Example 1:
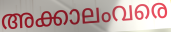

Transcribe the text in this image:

അക്കാലംവരെ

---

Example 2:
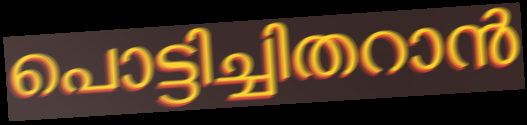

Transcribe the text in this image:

പൊട്ടിച്ചിതറാൻ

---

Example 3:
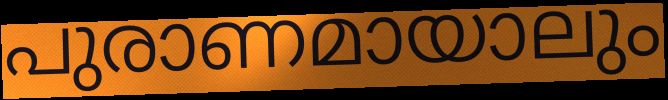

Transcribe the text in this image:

പുരാണമായാലും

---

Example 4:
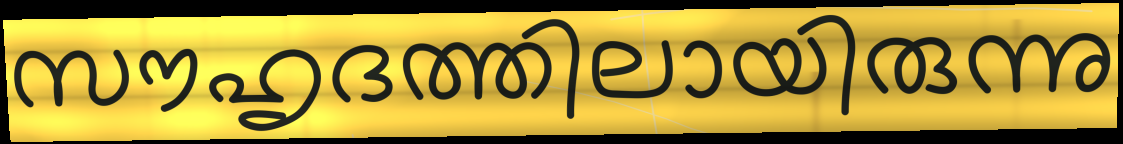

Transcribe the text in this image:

സൗഹൃദത്തിലായിരുന്നു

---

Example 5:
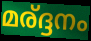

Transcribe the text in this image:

മര്ദ്ദനം